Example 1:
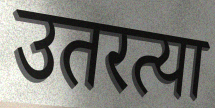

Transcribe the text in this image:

उतरत्या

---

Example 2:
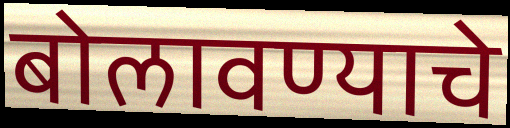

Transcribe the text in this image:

बोलावण्याचे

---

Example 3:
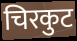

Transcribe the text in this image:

चिरकुट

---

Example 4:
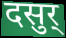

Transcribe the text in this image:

दसुर्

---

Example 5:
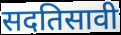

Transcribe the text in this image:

सदतिसावी